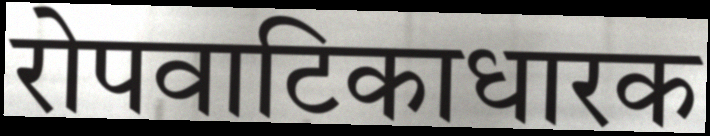
रोपवाटिकाधारक